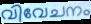
വിവേചനം